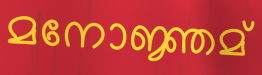
മനോജ്ഞമ്